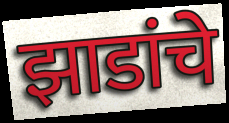
झाडांचे